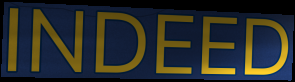
INDEED